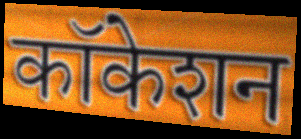
कॉकेशन